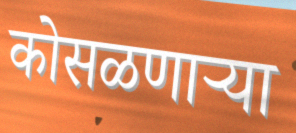
कोसळणाऱ्या